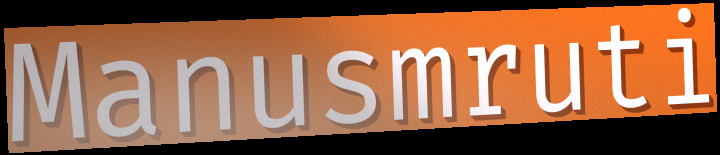
Manusmruti